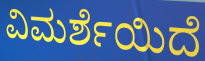
ವಿಮರ್ಶೆಯಿದೆ